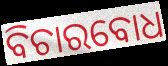
ବିଚାରବୋଧ